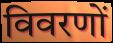
विवरणों